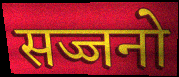
सज्जनो